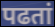
पढतां